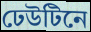
ঢেউটিনে